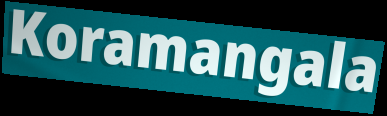
Koramangala